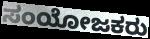
ಸಂಯೋಜಕರು